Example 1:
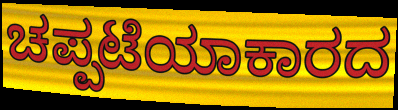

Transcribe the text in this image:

ಚಪ್ಪಟೆಯಾಕಾರದ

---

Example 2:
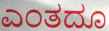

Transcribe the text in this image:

ಎಂತದೂ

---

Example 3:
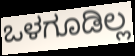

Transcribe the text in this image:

ಒಳಗೂಡಿಲ್ಲ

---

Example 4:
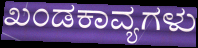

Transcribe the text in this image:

ಖಂಡಕಾವ್ಯಗಳು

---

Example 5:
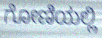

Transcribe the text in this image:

ಗೋಣಿಯಲ್ಲಿ